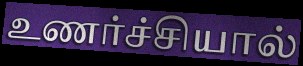
உணர்ச்சியால்